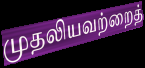
முதலியவற்றைத்